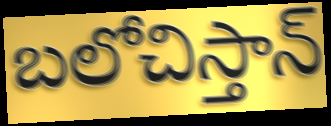
బలోచిస్తాన్